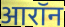
आरॉन